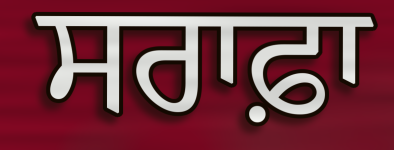
ਸਰਾਫ਼ਾ